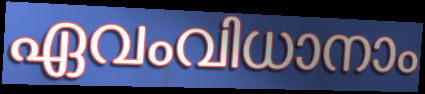
ഏവംവിധാനാം